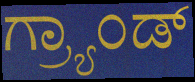
ಗ್ರ್ಯಾಂಡ್